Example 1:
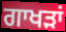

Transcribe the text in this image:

ਗਾਖੜਾਂ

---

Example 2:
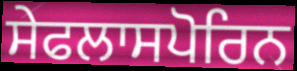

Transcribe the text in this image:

ਸੇਫਲਾਸਪੋਰਿਨ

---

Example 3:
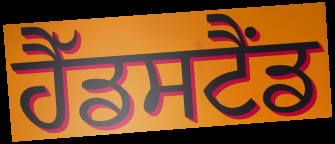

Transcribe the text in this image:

ਹੈੱਡਸਟੈਂਡ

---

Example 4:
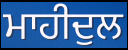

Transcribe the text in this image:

ਮਾਹੀਦੁਲ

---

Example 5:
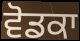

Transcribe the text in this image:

ਵੋਡਕਾ